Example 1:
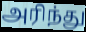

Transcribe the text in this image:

அரிந்து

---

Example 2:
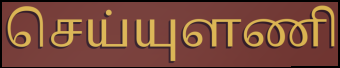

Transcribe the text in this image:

செய்யுளணி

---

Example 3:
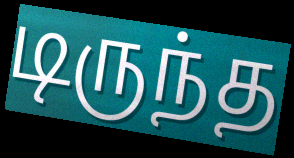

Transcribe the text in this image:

டிருந்த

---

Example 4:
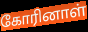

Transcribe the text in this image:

கோரினாள்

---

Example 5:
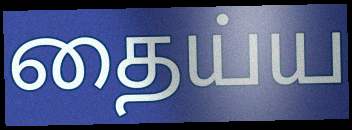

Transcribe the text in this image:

தைய்ய